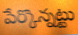
పేర్కొన్నట్టు